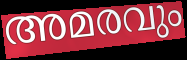
അമരവും